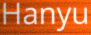
Hanyu